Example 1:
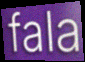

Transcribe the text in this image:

fala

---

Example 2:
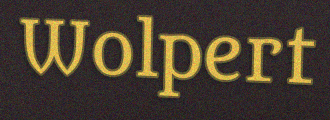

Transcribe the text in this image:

Wolpert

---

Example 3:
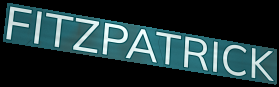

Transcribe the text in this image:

FITZPATRICK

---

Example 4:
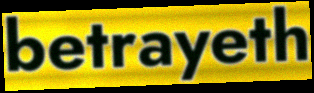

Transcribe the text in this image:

betrayeth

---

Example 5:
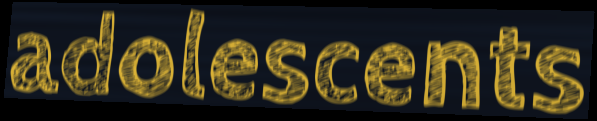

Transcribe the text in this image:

adolescents